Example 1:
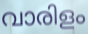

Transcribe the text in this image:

വാരിളം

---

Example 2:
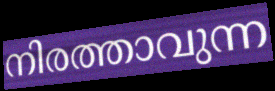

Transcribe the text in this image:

നിരത്താവുന്ന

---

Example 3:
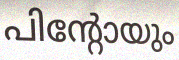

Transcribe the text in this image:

പിന്റോയും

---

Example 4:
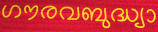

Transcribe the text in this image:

ഗൗരവബുദ്ധ്യാ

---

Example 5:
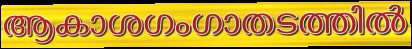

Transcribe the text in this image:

ആകാശഗംഗാതടത്തിൽ